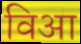
विआ